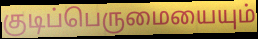
குடிப்பெருமையையும்